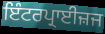
ਇੰਟਰਪ੍ਰਾਈਜ਼ਜ